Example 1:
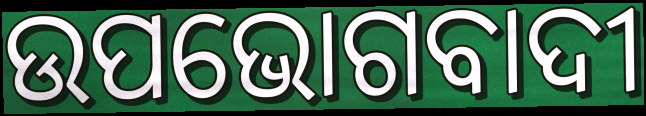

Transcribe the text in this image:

ଉପଭୋଗବାଦୀ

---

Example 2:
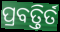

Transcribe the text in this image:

ପ୍ରବତ୍ତିର୍ତ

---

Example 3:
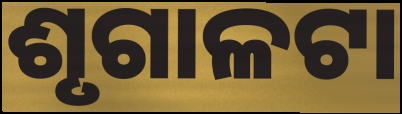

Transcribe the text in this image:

ଶୃଗାଳଟା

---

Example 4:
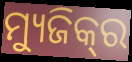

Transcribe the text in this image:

ମ୍ୟୁଜିକ୍‌ର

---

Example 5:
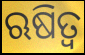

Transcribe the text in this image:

ଋଷିତ୍ୱ